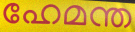
ഹേമന്ത